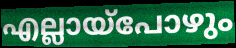
എല്ലായ്പോഴും